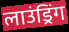
लाउंड्रिंग